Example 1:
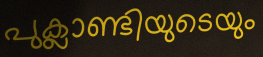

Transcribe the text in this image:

പുക്ലാണ്ടിയുടെയും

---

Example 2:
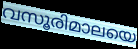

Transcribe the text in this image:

വസൂരിമാലയെ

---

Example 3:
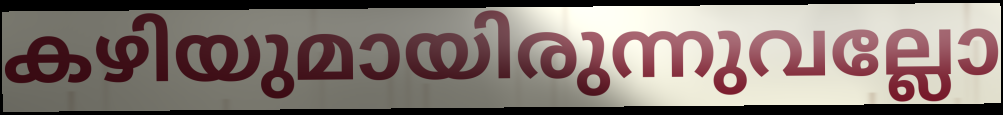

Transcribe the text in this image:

കഴിയുമായിരുന്നുവല്ലോ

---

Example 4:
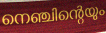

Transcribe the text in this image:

നെഞ്ചിന്റെയും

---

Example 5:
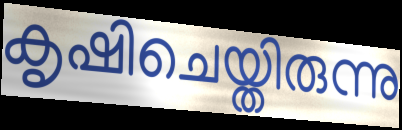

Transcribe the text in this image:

കൃഷിചെയ്തിരുന്നു